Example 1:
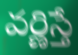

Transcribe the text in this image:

వర్ణిస్తే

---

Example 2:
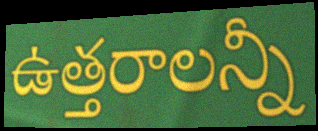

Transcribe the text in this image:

ఉత్తరాలన్నీ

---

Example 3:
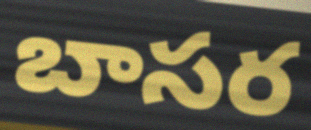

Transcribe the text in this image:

బాసర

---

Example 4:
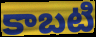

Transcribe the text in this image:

కాబటి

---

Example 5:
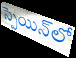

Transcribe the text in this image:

స్పెయిన్‌లో